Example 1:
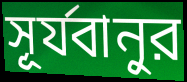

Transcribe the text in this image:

সূর্যবানুর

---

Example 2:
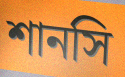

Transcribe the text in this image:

শানসি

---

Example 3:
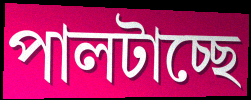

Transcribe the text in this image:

পালটাচ্ছে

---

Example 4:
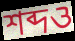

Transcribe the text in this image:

শব্দও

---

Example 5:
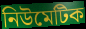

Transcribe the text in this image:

নিউমেটিক